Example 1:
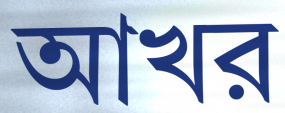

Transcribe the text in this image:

আখর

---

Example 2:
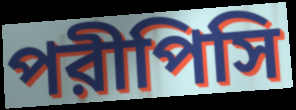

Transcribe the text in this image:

পরীপিসি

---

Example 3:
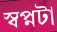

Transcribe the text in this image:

স্বপ্নটা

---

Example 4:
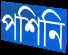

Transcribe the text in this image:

পশিনি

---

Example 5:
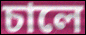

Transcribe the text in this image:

চালে